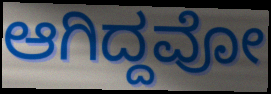
ಆಗಿದ್ದವೋ